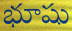
భూషు